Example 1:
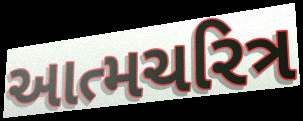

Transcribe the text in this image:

આત્મચરિત્ર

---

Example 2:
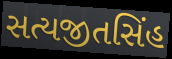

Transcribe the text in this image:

સત્યજીતસિંહ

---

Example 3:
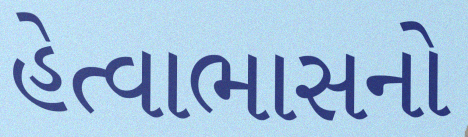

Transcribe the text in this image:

હેત્વાભાસનો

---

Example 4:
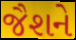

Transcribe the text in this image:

જૈશને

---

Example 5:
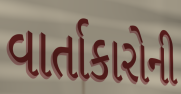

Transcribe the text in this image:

વાર્તાકારોની